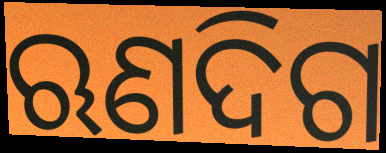
ଋଣଦିଗ